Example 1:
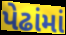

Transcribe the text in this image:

પેઢાંમાં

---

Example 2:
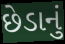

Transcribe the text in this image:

છેડાનું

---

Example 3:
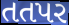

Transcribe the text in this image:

તતપર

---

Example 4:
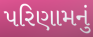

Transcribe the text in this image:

પરિણામનું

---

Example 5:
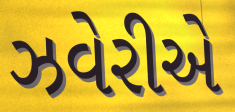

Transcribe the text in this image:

ઝવેરીએ